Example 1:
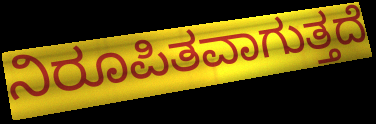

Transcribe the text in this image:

ನಿರೂಪಿತವಾಗುತ್ತದೆ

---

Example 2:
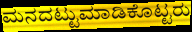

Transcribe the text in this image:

ಮನದಟ್ಟುಮಾಡಿಕೊಟ್ಟರು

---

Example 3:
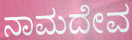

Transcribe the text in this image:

ನಾಮದೇವ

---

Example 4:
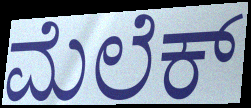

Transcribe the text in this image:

ಮೆಲೆಕ್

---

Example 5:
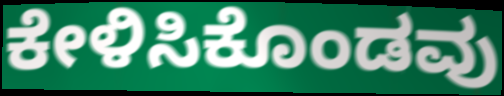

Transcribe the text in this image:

ಕೇಳಿಸಿಕೊಂಡವು